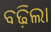
ବଢ଼ିଲା